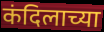
कंदिलाच्या